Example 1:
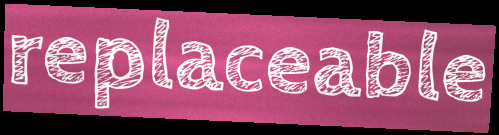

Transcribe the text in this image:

replaceable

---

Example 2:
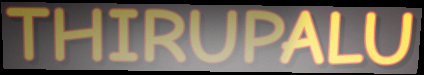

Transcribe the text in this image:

THIRUPALU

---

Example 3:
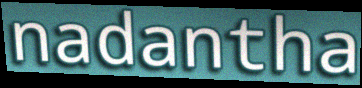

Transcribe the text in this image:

nadantha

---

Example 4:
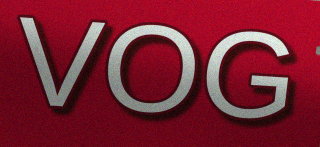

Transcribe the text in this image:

VOG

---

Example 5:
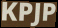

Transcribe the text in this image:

KPJP